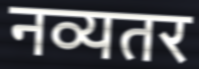
नव्यतर